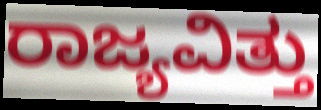
ರಾಜ್ಯವಿತ್ತು